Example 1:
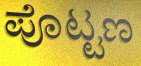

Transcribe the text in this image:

ಪೊಟ್ಟಣ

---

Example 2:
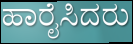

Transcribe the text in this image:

ಹಾರೈಸಿದರು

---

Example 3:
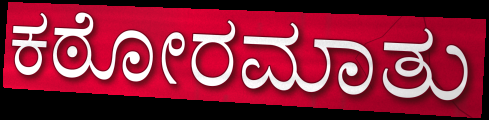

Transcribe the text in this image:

ಕಠೋರಮಾತು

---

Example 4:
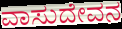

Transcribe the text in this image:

ವಾಸುದೇವನ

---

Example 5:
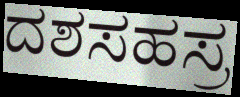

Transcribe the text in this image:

ದಶಸಹಸ್ರ